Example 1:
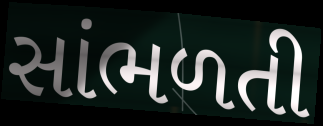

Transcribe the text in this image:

સાંભળતી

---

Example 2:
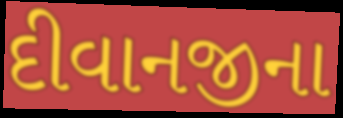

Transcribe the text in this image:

દીવાનજીના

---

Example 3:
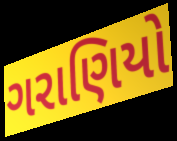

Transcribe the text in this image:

ગરાણિયો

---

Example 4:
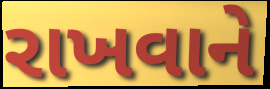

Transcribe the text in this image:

રાખવાને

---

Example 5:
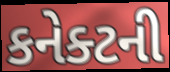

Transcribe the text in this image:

કનેક્ટની